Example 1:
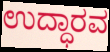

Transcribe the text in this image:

ಉದ್ಧಾರವ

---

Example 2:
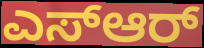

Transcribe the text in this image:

ಎಸ್ಆರ್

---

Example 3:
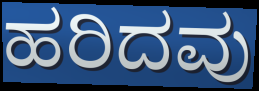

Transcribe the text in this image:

ಹರಿದವು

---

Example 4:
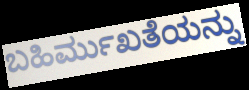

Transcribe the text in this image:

ಬಹಿರ್ಮುಖತೆಯನ್ನು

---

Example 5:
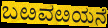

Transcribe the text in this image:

ಬೞವೞಯನೆ